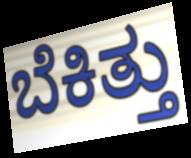
ಬೆಕಿತ್ತು